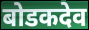
बोडकदेव